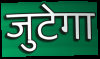
जुटेगा